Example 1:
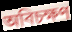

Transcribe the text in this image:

অবিচক্ষণ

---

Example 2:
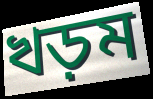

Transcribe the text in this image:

খড়ম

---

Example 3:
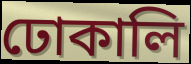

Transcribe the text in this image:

ঢোকালি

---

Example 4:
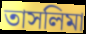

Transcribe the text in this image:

তাসলিমা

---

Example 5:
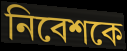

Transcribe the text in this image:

নিবেশকে